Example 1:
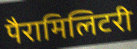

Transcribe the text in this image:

पैरामिलिटरी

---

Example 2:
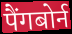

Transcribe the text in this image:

पैंगबोर्न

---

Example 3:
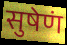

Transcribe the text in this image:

सुषेणं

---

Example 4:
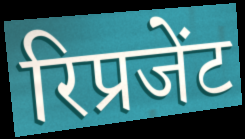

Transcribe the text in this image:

रिप्रजेंट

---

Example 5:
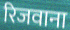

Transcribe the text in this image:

रिजवाना